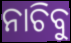
ନାଚିବୁ